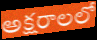
అక్షరాలలో